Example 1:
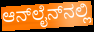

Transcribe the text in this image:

ಆನ್‌ಲೈನ್‌ನಲ್ಲಿ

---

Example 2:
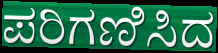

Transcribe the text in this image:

ಪರಿಗಣಿಸಿದ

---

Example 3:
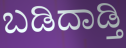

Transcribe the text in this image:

ಬಡಿದಾಡ್ತಿ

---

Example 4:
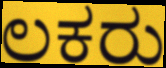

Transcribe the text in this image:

ಲಕರು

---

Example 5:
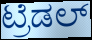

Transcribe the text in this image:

ಟ್ರೆಡಲ್